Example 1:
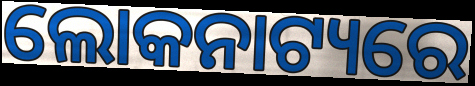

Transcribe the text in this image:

ଲୋକନାଟ୍ୟରେ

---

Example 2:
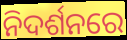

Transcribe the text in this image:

ନିଦର୍ଶନରେ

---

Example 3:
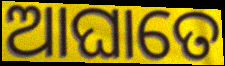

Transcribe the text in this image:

ଆଘାତେ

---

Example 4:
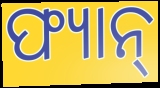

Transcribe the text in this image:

ଫ୍ୟାନ୍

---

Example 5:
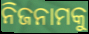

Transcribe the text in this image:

ନିଜନାମକୁ